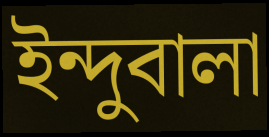
ইন্দুবালা